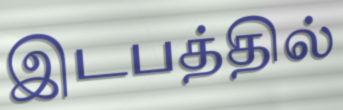
இடபத்தில்